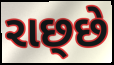
રાછ્છે